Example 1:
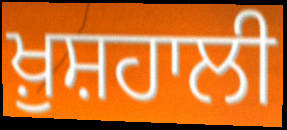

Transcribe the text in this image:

ਖ਼ੁਸ਼ਹਾਲੀ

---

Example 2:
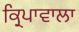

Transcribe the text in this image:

ਕ੍ਰਿਪਾਵਾਲਾ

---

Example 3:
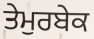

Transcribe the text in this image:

ਤੇਮੁਰਬੇਕ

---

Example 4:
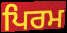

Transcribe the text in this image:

ਪਿਰਮ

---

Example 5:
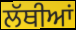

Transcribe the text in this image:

ਲੱਥੀਆਂ